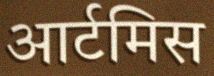
आर्टमिस